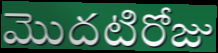
మొదటిరోజు